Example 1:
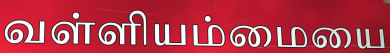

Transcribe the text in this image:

வள்ளியம்மையை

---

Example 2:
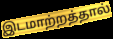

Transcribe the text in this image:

இடமாற்றத்தால்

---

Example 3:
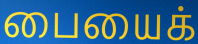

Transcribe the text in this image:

பையைக்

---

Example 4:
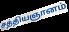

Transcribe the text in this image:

சத்தியஞானம்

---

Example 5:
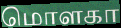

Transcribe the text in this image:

மொளகா